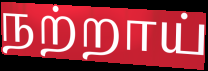
நற்றாய்